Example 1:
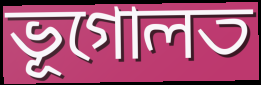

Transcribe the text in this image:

ভূগোলত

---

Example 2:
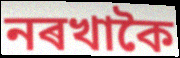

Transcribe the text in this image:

নৰখাকৈ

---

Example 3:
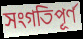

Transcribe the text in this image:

সংগতিপূৰ্ণ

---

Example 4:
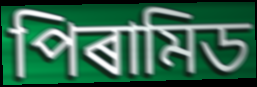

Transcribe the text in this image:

পিৰামিড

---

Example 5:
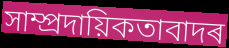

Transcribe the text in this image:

সাম্প্ৰদায়িকতাবাদৰ